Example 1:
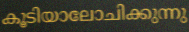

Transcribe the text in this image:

കൂടിയാലോചിക്കുന്നു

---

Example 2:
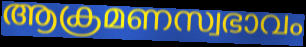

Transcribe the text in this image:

ആക്രമണസ്വഭാവം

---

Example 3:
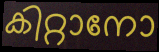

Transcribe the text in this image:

കിറ്റാനോ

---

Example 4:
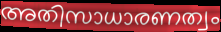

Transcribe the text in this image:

അതിസാധാരണത്വം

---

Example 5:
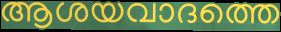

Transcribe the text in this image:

ആശയവാദത്തെ